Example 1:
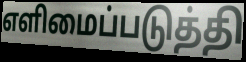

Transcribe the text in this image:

எளிமைப்படுத்தி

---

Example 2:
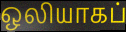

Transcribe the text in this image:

ஒலியாகப்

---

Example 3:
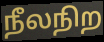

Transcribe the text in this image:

நீலநிற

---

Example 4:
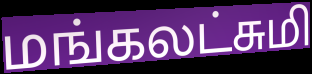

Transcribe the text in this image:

மங்கலட்சுமி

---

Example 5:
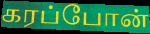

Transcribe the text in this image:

கரப்போன்